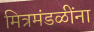
मित्रमंडळींना